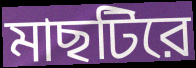
মাছটিরে